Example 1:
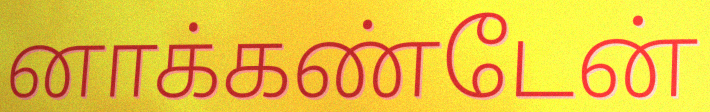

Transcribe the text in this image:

னாக்கண்டேன்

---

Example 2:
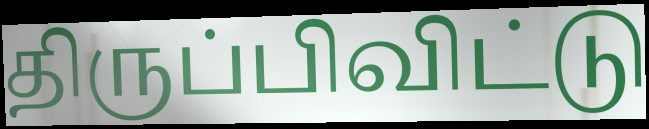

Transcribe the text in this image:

திருப்பிவிட்டு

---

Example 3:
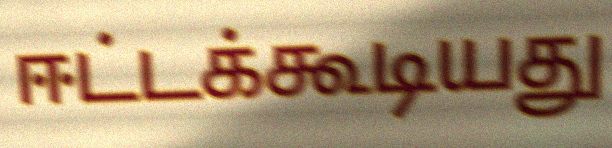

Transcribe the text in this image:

ஈட்டக்கூடியது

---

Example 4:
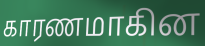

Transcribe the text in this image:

காரணமாகின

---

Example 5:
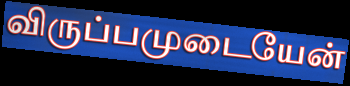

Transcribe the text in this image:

விருப்பமுடையேன்